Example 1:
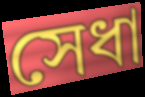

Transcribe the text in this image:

সেধা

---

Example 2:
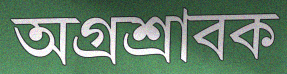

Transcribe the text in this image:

অগ্রশ্রাবক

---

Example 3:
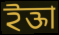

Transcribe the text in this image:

ইক্তা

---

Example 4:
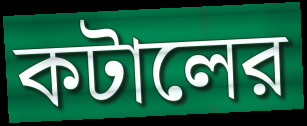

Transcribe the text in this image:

কটালের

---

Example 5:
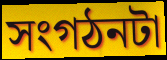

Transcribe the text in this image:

সংগঠনটা